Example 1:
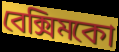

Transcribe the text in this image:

বেক্সিমকো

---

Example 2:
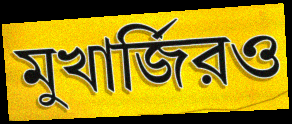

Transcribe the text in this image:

মুখার্জিরও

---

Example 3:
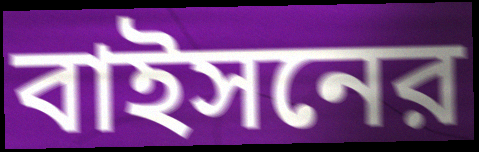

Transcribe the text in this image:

বাইসনের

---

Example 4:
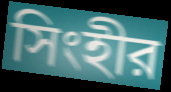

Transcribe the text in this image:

সিংহীর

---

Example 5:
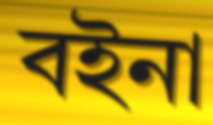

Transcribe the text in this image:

বইনা